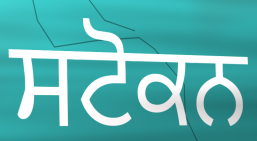
ਸਟੋਕਨ